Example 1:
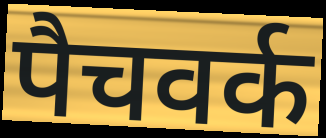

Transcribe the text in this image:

पैचवर्क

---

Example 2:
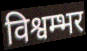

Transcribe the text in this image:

विश्वम्भर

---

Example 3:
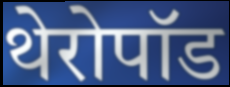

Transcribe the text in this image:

थेरोपॉड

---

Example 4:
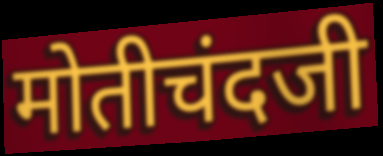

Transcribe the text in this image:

मोतीचंदजी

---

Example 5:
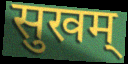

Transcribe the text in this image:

सुखम्